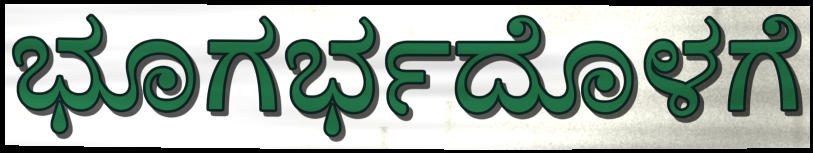
ಭೂಗರ್ಭದೊಳಗೆ